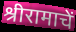
श्रीरामाचें